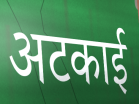
अटकाई